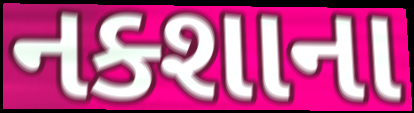
નક્શાના